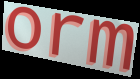
orm